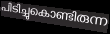
പിടിച്ചുകൊണ്ടിരുന്ന